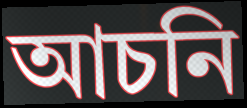
আচনি